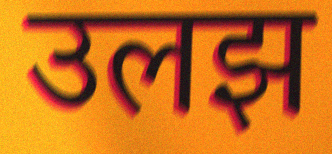
उलझ